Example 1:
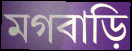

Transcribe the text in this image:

মগবাড়ি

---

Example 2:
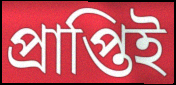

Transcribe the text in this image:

প্রাপ্তিই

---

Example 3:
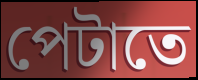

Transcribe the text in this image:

পেটাতে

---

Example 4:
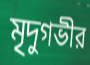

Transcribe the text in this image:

মৃদুগভীর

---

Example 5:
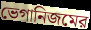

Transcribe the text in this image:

ভেগানিজমের